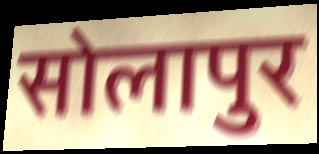
सोलापुर